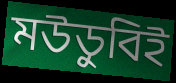
মউডুবিই